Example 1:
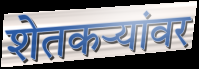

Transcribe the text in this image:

शेतकऱ्यांवर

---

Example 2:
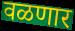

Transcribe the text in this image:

वळणार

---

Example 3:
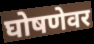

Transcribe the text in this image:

घोषणेवर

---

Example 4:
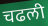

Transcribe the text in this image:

चढली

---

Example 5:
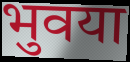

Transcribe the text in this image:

भुवया